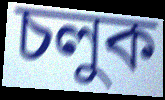
চলুক